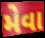
મેવા